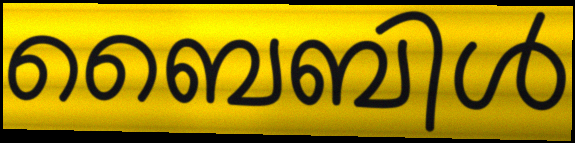
ബൈബിൾ